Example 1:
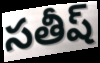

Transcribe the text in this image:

సతీష్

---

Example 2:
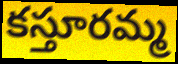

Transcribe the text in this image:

కస్తూరమ్మ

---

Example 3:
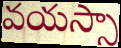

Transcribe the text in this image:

వయస్సా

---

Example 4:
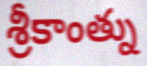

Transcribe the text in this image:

శ్రీకాంత్ను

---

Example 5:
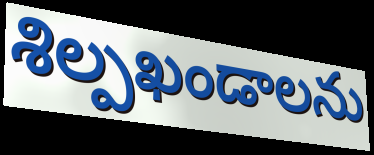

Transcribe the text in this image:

శిల్పఖండాలను